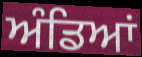
ਅੰਡਿਆਂ